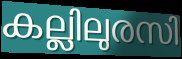
കല്ലിലുരസി